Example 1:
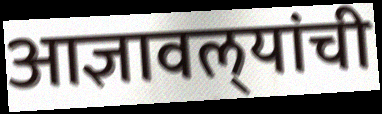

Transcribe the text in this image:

आज्ञावल्यांची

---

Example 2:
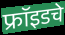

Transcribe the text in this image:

फ्रॉइडचे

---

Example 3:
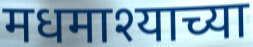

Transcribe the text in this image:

मधमाश्याच्या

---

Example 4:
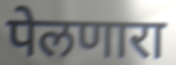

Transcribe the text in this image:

पेलणारा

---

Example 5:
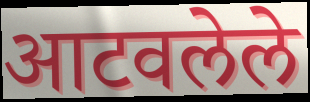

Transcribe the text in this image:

आटवलेले